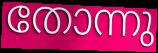
തോന്നു